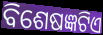
ବିଶେଷଜ୍ଞଟିଏ